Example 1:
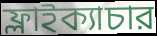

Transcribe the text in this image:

ফ্লাইক্যাচার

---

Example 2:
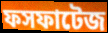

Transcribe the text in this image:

ফসফাটেজ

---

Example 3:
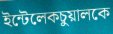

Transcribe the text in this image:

ইন্টেলেকচুয়ালকে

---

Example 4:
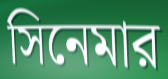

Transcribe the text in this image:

সিনেমার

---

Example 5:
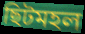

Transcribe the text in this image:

ছিটমহল